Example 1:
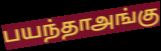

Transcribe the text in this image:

பயந்தாஅங்கு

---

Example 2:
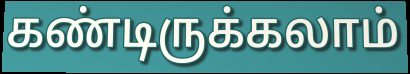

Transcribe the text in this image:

கண்டிருக்கலாம்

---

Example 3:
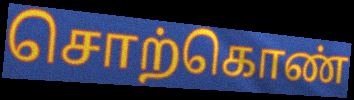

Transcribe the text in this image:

சொற்கொண்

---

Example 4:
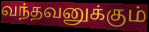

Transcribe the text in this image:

வந்தவனுக்கும்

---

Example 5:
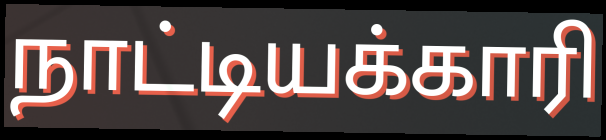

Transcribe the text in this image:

நாட்டியக்காரி